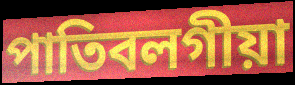
পাতিবলগীয়া